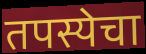
तपस्येचा